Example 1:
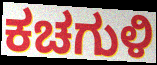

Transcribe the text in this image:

ಕಚಗುಳಿ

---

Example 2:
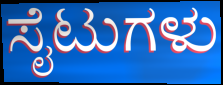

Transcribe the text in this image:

ಸೈಟುಗಳು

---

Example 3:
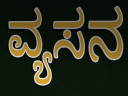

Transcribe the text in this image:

ವ್ಯಸನ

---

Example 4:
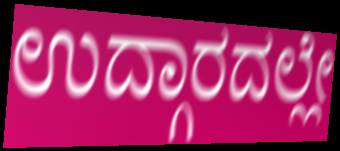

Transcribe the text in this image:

ಉದ್ಗಾರದಲ್ಲೇ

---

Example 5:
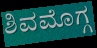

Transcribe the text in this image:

ಶಿವಮೊಗ್ಗ